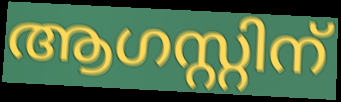
ആഗസ്റ്റിന്